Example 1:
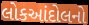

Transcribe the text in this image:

લોકઆંદોલનો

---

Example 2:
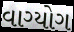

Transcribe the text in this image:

વાગ્યોગ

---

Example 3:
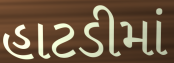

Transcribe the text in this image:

હાટડીમાં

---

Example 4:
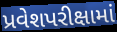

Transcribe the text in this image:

પ્રવેશપરીક્ષામાં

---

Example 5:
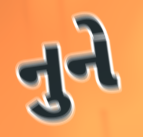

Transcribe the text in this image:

નુને